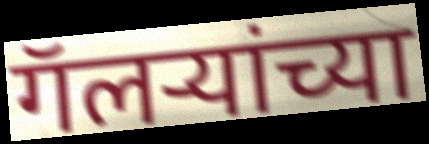
गॅलर्‍यांच्या